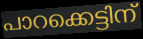
പാറക്കെട്ടിന്